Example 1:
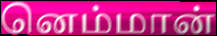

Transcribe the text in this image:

னெம்மான்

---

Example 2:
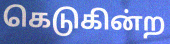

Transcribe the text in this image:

கெடுகின்ற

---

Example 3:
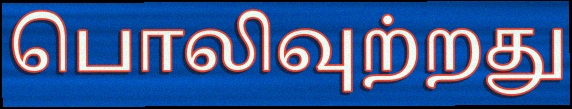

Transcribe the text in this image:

பொலிவுற்றது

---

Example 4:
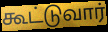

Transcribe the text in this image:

கூட்டுவார்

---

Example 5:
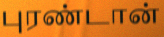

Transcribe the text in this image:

புரண்டான்